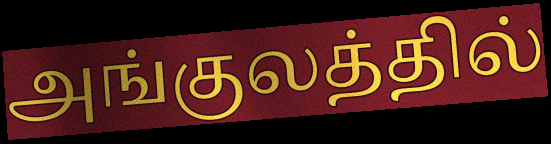
அங்குலத்தில்